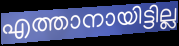
എത്താനായിട്ടില്ല